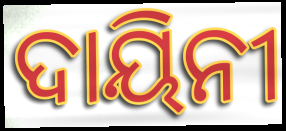
ଦାୟିନୀ